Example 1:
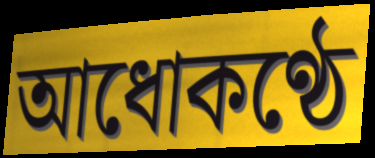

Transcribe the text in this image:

আধোকণ্ঠে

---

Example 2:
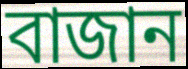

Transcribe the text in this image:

বাজান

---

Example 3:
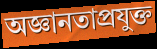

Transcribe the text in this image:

অজ্ঞানতাপ্রযুক্ত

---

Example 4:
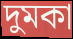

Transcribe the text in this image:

দুমকা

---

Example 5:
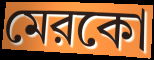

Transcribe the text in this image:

মেরকো